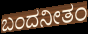
ಬಂದನೀತಂ